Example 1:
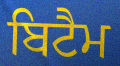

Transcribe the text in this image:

ਬਿਟੈਮ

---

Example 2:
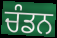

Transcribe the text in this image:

ਚੰਡਨ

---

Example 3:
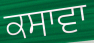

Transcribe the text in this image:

ਕਸਾਵਾ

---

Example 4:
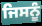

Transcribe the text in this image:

ਜਿਸਨੂੰ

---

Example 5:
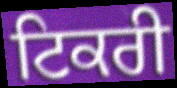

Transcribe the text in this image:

ਟਿਕਰੀ